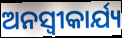
ଅନସ୍ବୀକାର୍ଯ୍ୟ